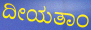
ದೀಯತಾಂ